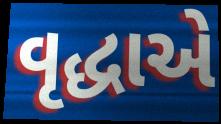
વૃદ્ધાએ